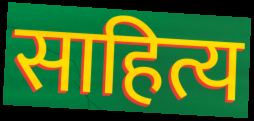
साहित्य